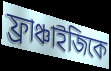
ফ্রাঞ্চাইজিকে